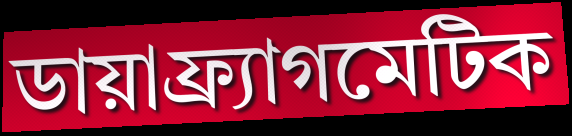
ডায়াফ্র্যাগমেটিক